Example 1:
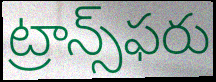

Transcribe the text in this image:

ట్రాన్స్‌ఫరు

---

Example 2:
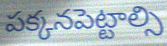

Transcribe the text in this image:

పక్కనపెట్టాల్సి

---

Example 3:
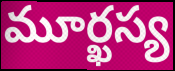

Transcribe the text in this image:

మూర్ఖస్య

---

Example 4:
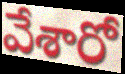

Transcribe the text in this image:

వేశారో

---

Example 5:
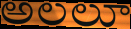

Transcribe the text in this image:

అలలూ